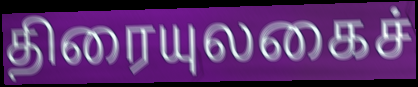
திரையுலகைச்